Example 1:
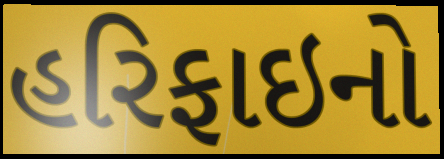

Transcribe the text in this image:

હરિફાઇનો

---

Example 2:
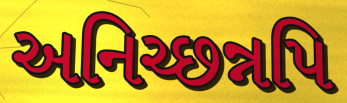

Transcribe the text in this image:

અનિચ્છન્નપિ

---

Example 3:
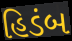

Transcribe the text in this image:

હિડંબ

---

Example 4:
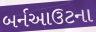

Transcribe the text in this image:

બર્નઆઉટના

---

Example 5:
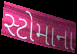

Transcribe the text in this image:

સ્ટોમાના